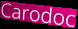
Carodoc